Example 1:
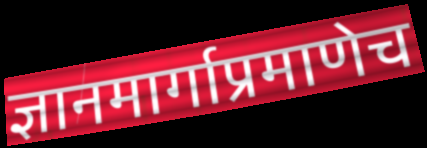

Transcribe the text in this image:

ज्ञानमार्गाप्रमाणेच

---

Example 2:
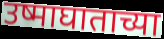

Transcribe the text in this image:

उष्माघाताच्या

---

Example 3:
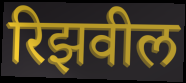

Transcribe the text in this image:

रिझवील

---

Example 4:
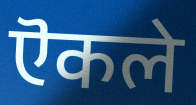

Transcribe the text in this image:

ऎकले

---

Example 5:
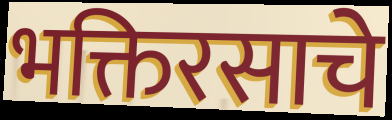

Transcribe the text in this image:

भक्तिरसाचे